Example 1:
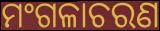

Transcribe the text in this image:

ମଂଗଳାଚରଣ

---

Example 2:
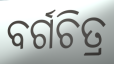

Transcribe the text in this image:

ବର୍ଗଚିତ୍ର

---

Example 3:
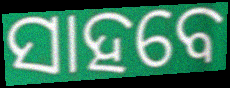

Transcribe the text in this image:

ସାହବେ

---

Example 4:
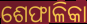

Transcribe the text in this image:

ଶେଫାଳିକା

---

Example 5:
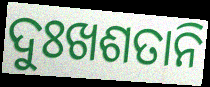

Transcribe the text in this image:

ଦୁଃଖଶତାନି